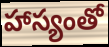
హాస్యంతో